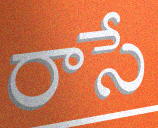
రాసే